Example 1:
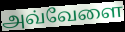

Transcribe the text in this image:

அவ்வேளை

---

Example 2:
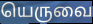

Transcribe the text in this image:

யெருவை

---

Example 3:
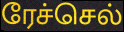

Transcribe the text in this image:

ரேச்செல்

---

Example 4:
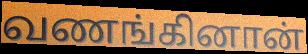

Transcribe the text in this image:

வணங்கினான்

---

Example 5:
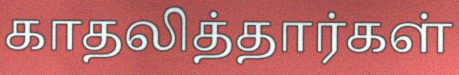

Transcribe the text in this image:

காதலித்தார்கள்